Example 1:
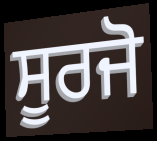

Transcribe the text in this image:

ਸੂਰਜੋ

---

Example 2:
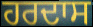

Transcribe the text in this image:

ਹਰਦਾਸ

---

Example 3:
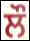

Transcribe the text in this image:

ਲੌ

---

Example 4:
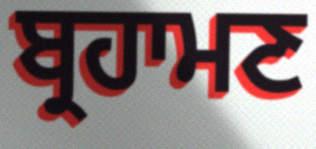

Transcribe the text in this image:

ਬ੍ਰਹਾਮਣ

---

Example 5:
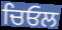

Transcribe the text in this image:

ਚਿਓਲ